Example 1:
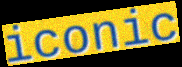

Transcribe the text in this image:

iconic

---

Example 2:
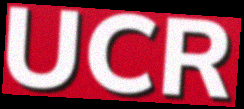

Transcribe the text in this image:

UCR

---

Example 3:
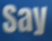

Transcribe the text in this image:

Say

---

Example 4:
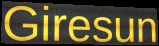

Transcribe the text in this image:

Giresun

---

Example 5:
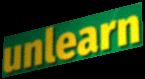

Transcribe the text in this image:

unlearn